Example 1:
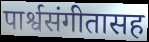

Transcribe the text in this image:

पार्श्वसंगीतासह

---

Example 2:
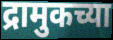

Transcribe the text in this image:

द्रामुकच्या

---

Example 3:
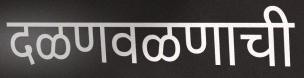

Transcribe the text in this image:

दळणवळणाची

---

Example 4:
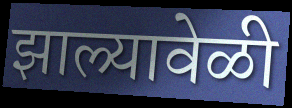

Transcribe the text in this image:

झाल्यावेळी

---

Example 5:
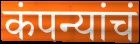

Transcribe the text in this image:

कंपन्यांचं